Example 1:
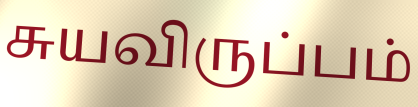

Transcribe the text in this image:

சுயவிருப்பம்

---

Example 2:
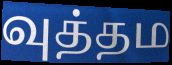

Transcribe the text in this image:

வுத்தம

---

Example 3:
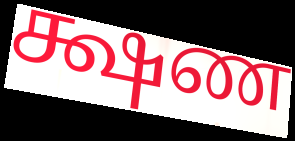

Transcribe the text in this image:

க்ஷண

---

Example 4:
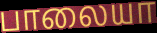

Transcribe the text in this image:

பாலையா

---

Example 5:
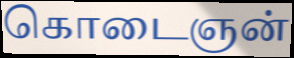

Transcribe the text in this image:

கொடைஞன்